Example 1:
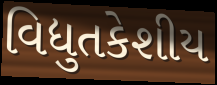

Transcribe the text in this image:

વિદ્યુતકેશીય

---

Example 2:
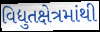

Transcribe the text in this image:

વિદ્યુતક્ષેત્રમાંથી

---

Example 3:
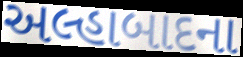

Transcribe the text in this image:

અલ્હાબાદના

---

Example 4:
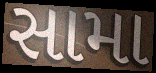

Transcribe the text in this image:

સામા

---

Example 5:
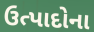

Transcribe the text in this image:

ઉત્પાદોના